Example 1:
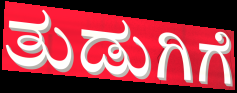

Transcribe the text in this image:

ತುಡುಗಿಗೆ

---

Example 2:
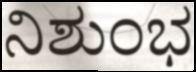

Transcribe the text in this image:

ನಿಶುಂಭ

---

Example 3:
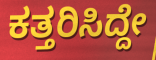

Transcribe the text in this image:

ಕತ್ತರಿಸಿದ್ದೇ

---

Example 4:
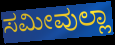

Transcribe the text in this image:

ಸಮೀವುಲ್ಲಾ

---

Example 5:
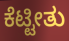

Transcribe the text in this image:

ಕೆಟ್ಟೀತು